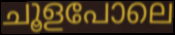
ചൂളപോലെ